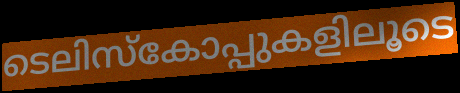
ടെലിസ്കോപ്പുകളിലൂടെ